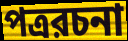
পত্ররচনা